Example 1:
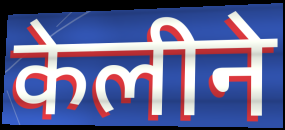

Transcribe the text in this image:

केलीने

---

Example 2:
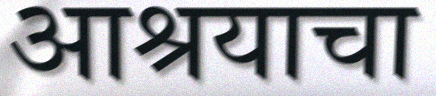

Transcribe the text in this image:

आश्रयाचा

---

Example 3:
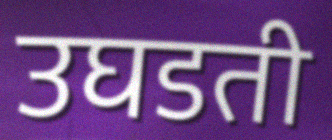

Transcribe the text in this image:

उघडती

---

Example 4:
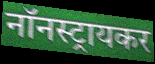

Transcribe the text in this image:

नॉनस्ट्रायकर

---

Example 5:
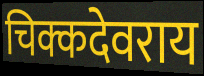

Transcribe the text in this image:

चिक्कदेवराय